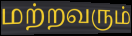
மற்றவரும்